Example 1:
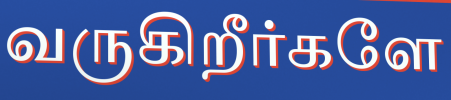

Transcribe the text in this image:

வருகிறீர்களே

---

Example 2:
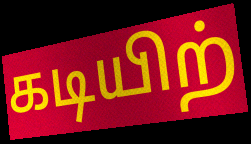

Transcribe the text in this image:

கடியிற்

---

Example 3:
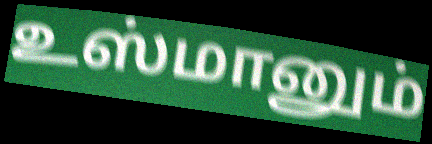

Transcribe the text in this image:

உஸ்மானும்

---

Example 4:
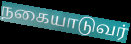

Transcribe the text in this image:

நகையாடுவர்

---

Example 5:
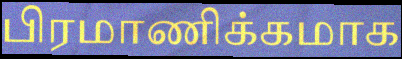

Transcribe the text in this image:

பிரமாணிக்கமாக